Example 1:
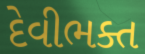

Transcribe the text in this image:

દેવીભક્ત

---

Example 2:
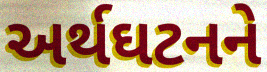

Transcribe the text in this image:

અર્થઘટનને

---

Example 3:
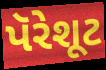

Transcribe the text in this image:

પૅરેશૂટ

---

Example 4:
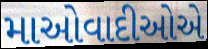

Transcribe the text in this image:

માઓવાદીઓએ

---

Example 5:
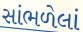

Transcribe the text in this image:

સાંભળેલાં